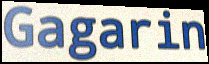
Gagarin